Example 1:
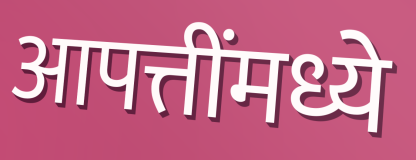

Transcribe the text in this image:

आपत्तींमध्ये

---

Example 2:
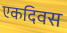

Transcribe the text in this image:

एकदिवस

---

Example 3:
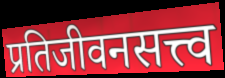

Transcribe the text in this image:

प्रतिजीवनसत्त्व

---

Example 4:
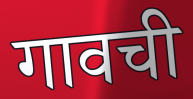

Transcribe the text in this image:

गावची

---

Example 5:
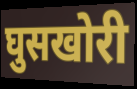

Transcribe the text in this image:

घुसखोरी